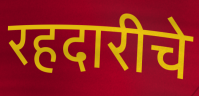
रहदारीचे